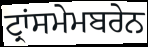
ਟ੍ਰਾਂਸਮੇਮਬਰੇਨ